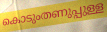
കൊടുംതണുപ്പുള്ള